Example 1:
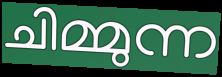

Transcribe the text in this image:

ചിമ്മുന്ന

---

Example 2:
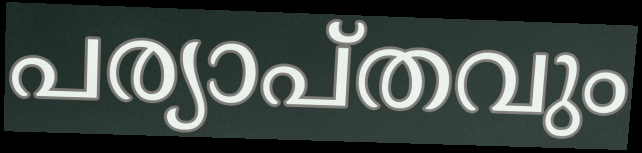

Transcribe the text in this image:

പര്യാപ്തവും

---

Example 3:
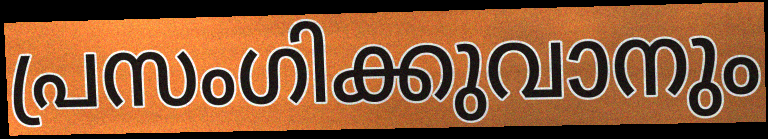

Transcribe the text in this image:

പ്രസംഗിക്കുവാനും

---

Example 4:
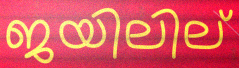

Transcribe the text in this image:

ജയിലില്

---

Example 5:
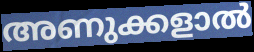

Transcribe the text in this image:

അണുക്കളാൽ